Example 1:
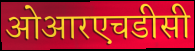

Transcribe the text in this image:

ओआरएचडीसी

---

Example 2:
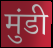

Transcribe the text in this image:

मुंडी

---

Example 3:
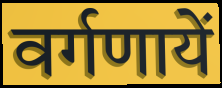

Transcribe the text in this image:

वर्गणायें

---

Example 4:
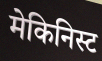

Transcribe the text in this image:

मेकिनिस्ट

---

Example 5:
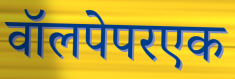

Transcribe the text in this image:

वॉलपेपरएक